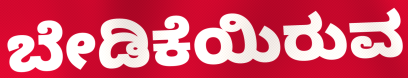
ಬೇಡಿಕೆಯಿರುವ